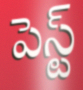
పెస్ట్